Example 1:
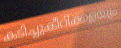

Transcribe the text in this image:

കടിച്ചുകീറിക്കളയും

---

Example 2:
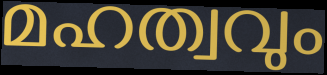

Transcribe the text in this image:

മഹത്വവും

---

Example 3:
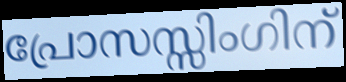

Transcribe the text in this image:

പ്രോസസ്സിംഗിന്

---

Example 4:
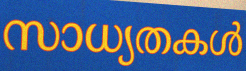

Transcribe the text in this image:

സാധ്യതകൾ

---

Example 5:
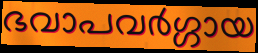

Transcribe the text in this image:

ഭവാപവർഗ്ഗായ